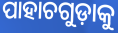
ପାହାଚଗୁଡ଼ାକୁ